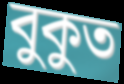
বুকুত